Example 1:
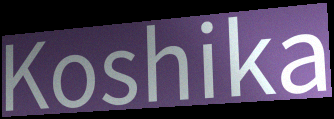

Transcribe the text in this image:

Koshika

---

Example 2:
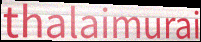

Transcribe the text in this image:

thalaimurai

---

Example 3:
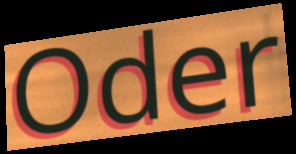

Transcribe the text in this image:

Oder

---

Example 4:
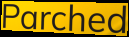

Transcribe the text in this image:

Parched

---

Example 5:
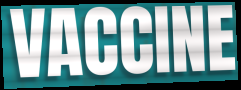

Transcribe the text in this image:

VACCINE